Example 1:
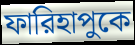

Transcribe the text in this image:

ফারিহাপুকে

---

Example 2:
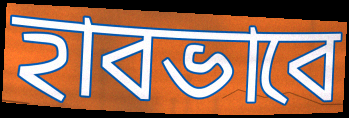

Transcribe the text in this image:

হাবভাবে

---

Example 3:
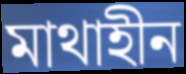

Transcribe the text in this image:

মাথাহীন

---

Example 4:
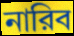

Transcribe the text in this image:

নারিব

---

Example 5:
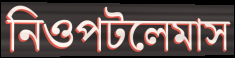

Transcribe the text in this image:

নিওপটলেমাস